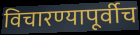
विचारण्यापूर्वीच